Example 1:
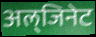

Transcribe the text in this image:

अल्जिनेट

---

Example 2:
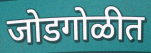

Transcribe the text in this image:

जोडगोळीत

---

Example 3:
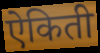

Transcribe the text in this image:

ऐकिती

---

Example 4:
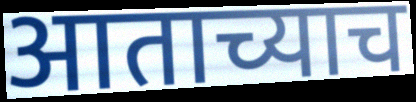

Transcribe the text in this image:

आताच्याच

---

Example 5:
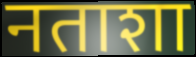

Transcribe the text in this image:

नताशा